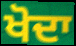
ਖੋਦਾ